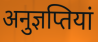
अनुज्ञप्तियां